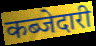
कब्जेदारी